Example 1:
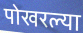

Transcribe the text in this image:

पोखरल्या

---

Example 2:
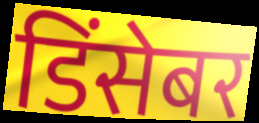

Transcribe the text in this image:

डिंसेबर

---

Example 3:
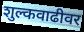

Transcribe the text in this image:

शुल्कवाढीवर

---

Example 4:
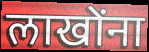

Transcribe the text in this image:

लाखोंना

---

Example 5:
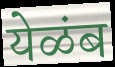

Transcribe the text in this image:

येळंब